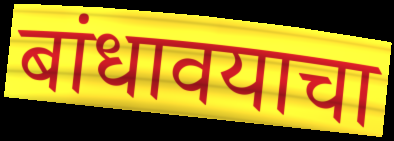
बांधावयाचा